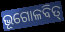
ଭୂଗୋଳବିତ୍